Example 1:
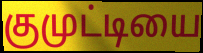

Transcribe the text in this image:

குமுட்டியை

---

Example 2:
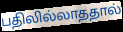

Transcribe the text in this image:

பதிலில்லாததால்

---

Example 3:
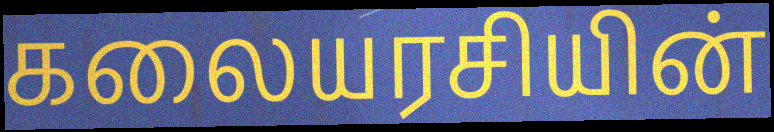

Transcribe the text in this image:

கலையரசியின்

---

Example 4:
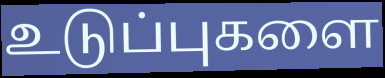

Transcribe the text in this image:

உடுப்புகளை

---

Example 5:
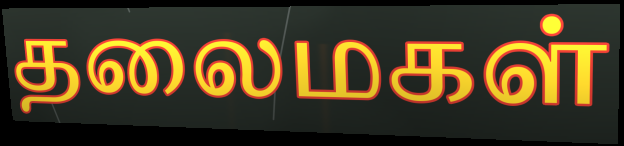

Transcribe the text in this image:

தலைமகள்